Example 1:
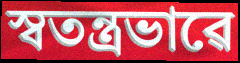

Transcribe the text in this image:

স্বতন্ত্ৰভাৱে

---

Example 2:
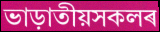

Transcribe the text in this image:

ভাড়াতীয়সকলৰ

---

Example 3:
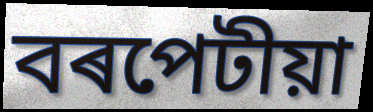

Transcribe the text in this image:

বৰপেটীয়া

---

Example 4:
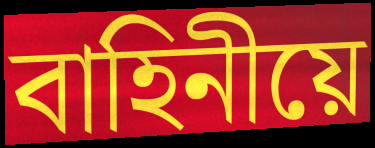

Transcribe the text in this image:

বাহিনীয়ে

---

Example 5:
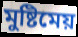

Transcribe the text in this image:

মুষ্টিমেয়